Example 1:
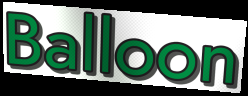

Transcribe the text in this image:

Balloon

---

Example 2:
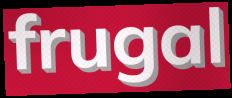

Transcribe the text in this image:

frugal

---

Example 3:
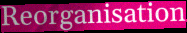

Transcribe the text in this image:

Reorganisation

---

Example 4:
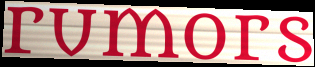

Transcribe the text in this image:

rumors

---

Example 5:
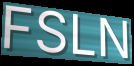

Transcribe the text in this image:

FSLN